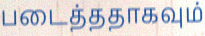
படைத்ததாகவும்